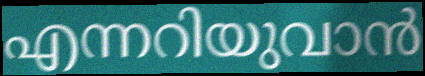
എന്നറിയുവാൻ